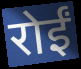
रोईं